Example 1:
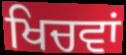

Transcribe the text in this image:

ਖਿਚਵਾਂ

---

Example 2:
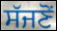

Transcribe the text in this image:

ਸੱਜਣੋਂ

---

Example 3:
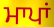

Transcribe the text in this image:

ਮਾਪਾਂ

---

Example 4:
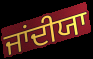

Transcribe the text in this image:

ਜਾਂਦੀਯਾ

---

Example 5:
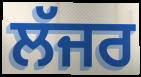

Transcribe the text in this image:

ਲੱਜਰ